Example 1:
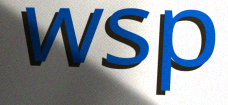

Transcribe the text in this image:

wsp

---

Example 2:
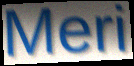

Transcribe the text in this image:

Meri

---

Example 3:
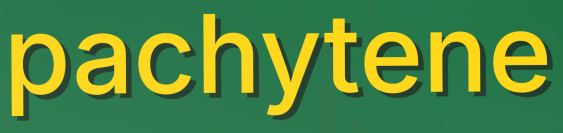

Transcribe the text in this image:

pachytene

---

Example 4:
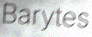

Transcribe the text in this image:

Barytes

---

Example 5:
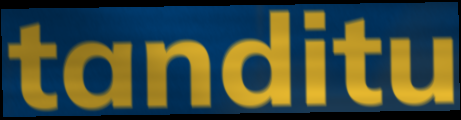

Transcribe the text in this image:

tanditu